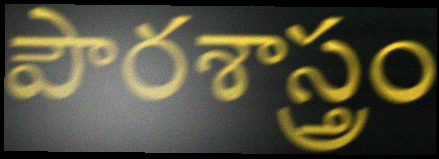
పౌరశాస్త్రం